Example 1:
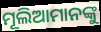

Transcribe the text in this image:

ମୂଲିଆମାନଙ୍କୁ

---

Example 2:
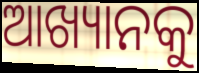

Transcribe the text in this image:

ଆଖ୍ୟାନକୁ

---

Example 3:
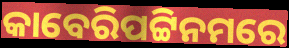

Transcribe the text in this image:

କାବେରିପଟ୍ଟିନମରେ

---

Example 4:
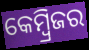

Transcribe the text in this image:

କେମ୍ୱ୍ରିଜର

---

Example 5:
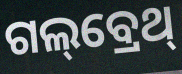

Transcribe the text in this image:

ଗଲ୍‌ବ୍ରେଥ୍